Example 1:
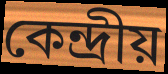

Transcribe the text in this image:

কেন্দ্ৰীয়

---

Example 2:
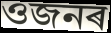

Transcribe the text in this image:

ওজনৰ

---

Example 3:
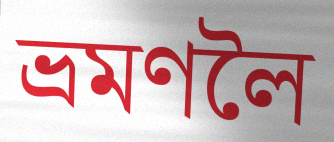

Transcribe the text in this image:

ভ্ৰমণলৈ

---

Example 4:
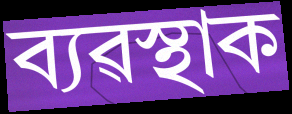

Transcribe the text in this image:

ব্যৱস্থাক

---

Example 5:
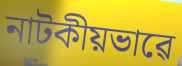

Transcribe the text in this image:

নাটকীয়ভাৱে